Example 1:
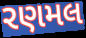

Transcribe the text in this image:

રણમલ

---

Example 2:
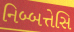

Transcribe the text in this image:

નિબ્બત્તેસિ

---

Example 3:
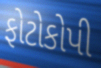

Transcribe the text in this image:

ફોટોકોપી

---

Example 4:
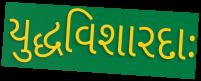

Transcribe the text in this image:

યુદ્ધવિશારદાઃ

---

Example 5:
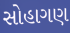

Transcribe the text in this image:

સોહાગણ